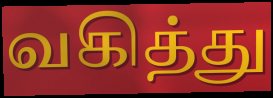
வகித்து